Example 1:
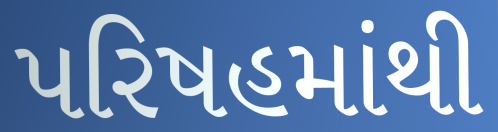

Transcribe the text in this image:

પરિષહમાંથી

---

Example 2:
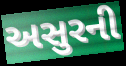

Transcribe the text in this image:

અસુરની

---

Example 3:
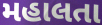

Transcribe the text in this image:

મહાલતા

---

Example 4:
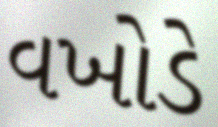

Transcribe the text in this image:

વખોડે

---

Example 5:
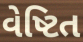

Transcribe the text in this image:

વેષ્ટિત